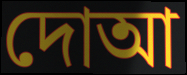
দোআ